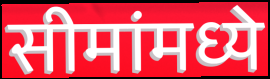
सीमांमध्ये